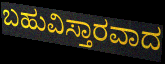
ಬಹುವಿಸ್ತಾರವಾದ